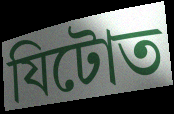
যিটোত